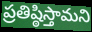
ప్రతిష్ఠిస్తామని